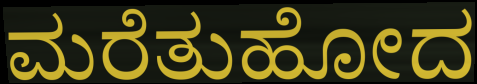
ಮರೆತುಹೋದ